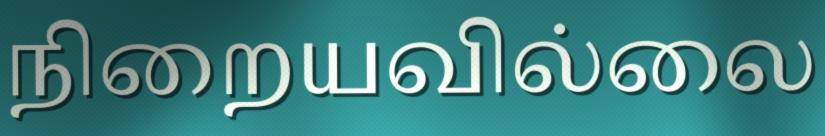
நிறையவில்லை